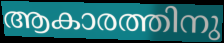
ആകാരത്തിനു